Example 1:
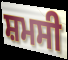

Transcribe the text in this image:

ਸ਼ਮਸੀ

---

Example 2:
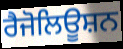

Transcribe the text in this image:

ਰੈਜੋਲਿਊਸ਼ਨ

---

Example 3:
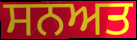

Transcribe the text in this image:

ਸਨਅਤ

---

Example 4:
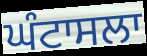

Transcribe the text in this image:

ਘੰਟਾਸਲਾ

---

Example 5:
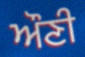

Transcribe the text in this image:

ਔਣੀ